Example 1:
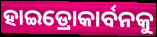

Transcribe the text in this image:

ହାଇଡ୍ରୋକାର୍ବନକୁ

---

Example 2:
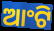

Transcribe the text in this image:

ଆଂଟି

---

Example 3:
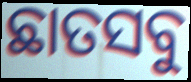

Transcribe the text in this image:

ଛାତସବୁ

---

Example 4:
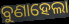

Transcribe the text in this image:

ବୁଣାହେଲା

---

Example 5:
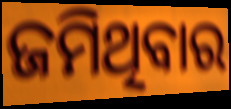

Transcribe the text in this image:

ଜମିଥିବାର